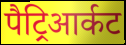
पैट्रिआर्कट